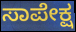
ಸಾಪೇಕ್ಷ